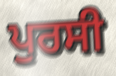
ਪੁਰਸੀ